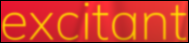
excitant